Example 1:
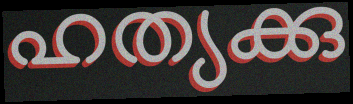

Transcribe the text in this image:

ഹത്യക്കു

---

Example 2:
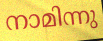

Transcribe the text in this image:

നാമിന്നു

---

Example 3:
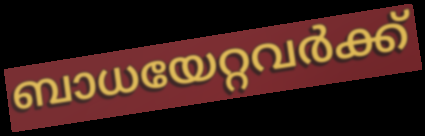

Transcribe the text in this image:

ബാധയേറ്റവർക്ക്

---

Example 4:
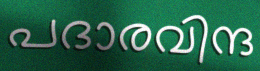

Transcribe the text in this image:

പദാരവിന്ദ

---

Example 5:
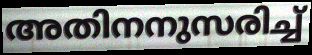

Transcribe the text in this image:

അതിനനുസരിച്ച്